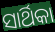
ସାର୍ଥିକା